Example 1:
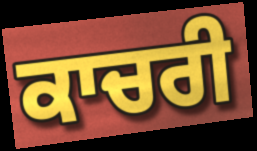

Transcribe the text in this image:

ਕਾਚਰੀ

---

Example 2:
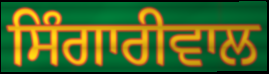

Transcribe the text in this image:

ਸਿੰਗਾਰੀਵਾਲ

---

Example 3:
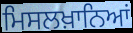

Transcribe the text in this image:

ਮਿਸਲਖ਼ਾਨਿਆਂ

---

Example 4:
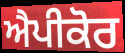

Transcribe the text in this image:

ਐਪੀਕੋਰ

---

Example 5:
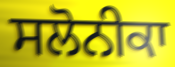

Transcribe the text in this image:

ਸਲੋਨੀਕਾ